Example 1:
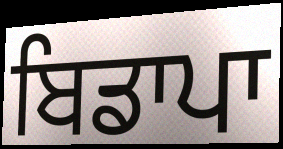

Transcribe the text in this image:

ਬਿਡਾਪਾ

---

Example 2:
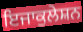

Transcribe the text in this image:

ਇਜਾਕੁਲੇਸ਼ਨ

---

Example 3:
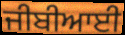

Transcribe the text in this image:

ਜੀਬੀਆਈ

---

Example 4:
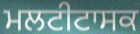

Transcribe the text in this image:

ਮਲਟੀਟਾਸਕ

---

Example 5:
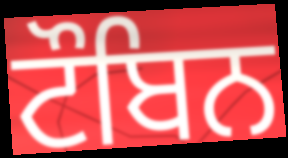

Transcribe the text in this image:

ਟੌਬਿਨ